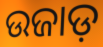
ଉଜାଡ଼